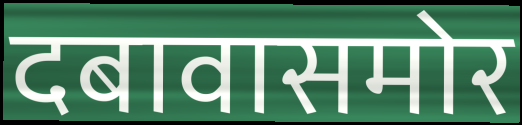
दबावासमोर